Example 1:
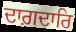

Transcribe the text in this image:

ਦਾਗ਼ਦਾਰਿ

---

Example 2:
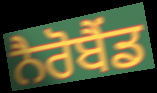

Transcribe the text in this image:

ਨੈਰੋਬੈਂਡ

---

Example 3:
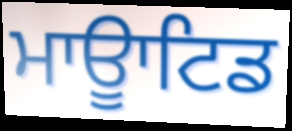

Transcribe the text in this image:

ਮਾਊਾਟਿਡ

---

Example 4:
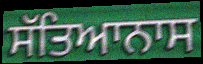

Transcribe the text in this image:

ਸੱਤਿਆਨਾਸ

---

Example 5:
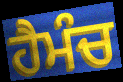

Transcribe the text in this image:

ਹੈਮੰਚ